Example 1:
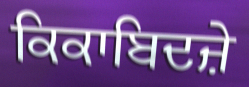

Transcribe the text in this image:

ਕਿਕਾਬਿਦਜ਼ੇ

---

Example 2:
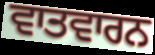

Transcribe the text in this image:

ਵਾਤਵਾਰਨ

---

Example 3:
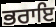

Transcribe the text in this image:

ਭਰਾਇ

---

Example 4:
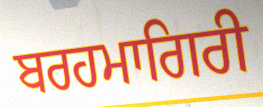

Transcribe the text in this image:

ਬਰਹਮਾਗਿਰੀ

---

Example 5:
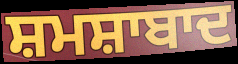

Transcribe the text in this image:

ਸ਼ਮਸ਼ਾਬਾਦ